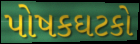
પોષકઘટકો